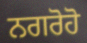
ਨਗਰੋਹੋ